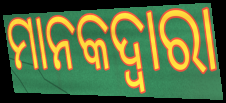
ମାନକଦ୍ୱାରା